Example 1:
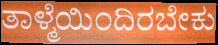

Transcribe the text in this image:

ತಾಳ್ಮೆಯಿಂದಿರಬೇಕು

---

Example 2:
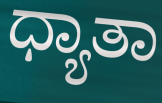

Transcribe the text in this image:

ಧ್ಯಾತಾ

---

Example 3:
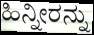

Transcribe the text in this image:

ಹಿನ್ನೀರನ್ನು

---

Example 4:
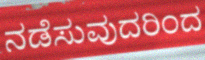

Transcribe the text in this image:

ನಡೆಸುವುದರಿಂದ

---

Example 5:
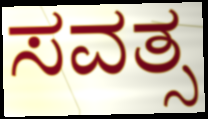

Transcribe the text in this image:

ಸವತ್ಸ